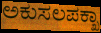
ಅಕುಸಲಪಕ್ಖಾ